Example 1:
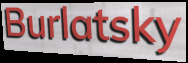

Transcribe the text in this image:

Burlatsky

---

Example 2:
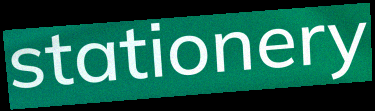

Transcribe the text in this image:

stationery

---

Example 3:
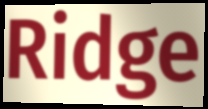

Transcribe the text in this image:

Ridge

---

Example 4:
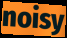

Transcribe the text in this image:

noisy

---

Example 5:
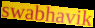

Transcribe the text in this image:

swabhavik